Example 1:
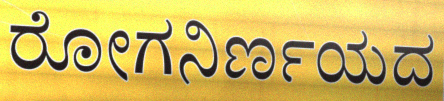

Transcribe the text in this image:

ರೋಗನಿರ್ಣಯದ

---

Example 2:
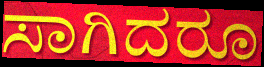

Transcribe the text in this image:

ಸಾಗಿದರೂ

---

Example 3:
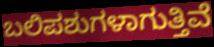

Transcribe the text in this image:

ಬಲಿಪಶುಗಳಾಗುತ್ತಿವೆ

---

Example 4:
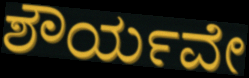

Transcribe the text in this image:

ಶೌರ್ಯವೇ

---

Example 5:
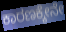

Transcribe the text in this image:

ಕಾರಣಕ್ಕೇನೇ